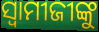
ସ୍ଵାମୀଜୀଙ୍କୁ